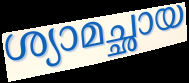
ശ്യാമച്ഛായ